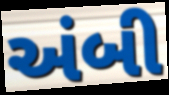
અંબી